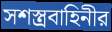
সশস্ত্রবাহিনীর